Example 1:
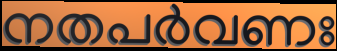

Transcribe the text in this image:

നതപർവണഃ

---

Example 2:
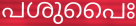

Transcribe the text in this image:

പശുപൈഃ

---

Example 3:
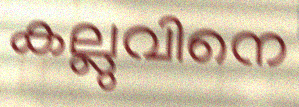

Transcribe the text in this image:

കല്ലുവിനെ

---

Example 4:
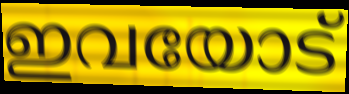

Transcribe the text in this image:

ഇവയോട്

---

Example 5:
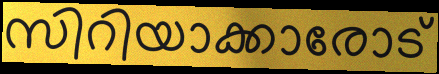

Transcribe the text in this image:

സിറിയാക്കാരോട്